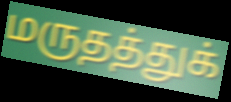
மருதத்துக்